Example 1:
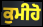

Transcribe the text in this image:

ਕੁਮੀਹੋ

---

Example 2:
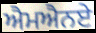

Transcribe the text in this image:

ਐਮਐਨਏ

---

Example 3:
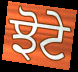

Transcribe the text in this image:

ਝੋਟੇ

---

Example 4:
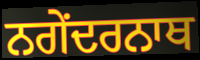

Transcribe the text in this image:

ਨਗੇਂਦਰਨਾਥ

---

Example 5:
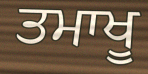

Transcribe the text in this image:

ਤਮਾਖੂ